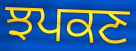
ਝਪਕਣ